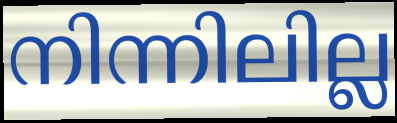
നിന്നിലില്ല